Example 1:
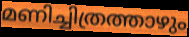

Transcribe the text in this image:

മണിച്ചിത്രത്താഴും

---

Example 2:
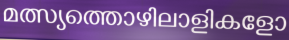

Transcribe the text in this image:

മത്സ്യത്തൊഴിലാളികളോ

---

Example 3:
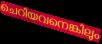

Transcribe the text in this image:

ചെറിയവനെങ്കിലും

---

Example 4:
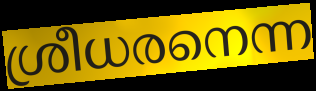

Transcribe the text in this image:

ശ്രീധരനെന്ന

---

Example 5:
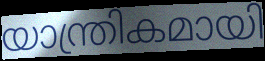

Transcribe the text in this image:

യാന്ത്രികമായി